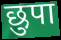
छुपा